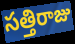
సత్తిరాజు